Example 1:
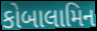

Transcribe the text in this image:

કોબાલામિન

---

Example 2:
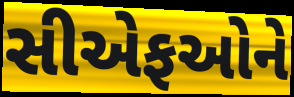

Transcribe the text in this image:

સીએફઓને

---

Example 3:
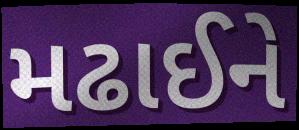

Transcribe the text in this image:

મઢાઈને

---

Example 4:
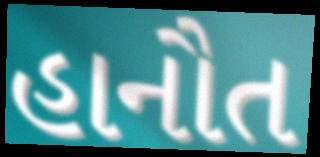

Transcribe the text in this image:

હાનૌત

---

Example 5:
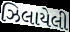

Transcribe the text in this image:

ઝિલાયેલી